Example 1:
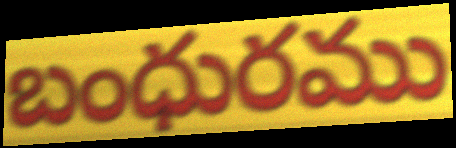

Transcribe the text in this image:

బంధురము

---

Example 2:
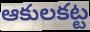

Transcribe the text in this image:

ఆకులకట్ట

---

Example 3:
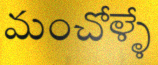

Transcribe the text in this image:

మంచోళ్ళే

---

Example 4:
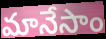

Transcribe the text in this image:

మానేసాం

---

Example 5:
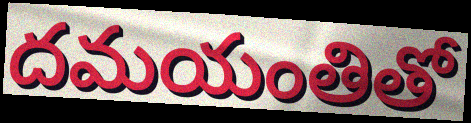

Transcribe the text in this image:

దమయంతితో